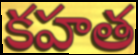
కహత